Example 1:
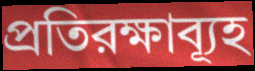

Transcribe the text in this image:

প্রতিরক্ষাব্যূহ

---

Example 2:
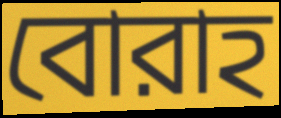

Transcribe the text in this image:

বোরাহ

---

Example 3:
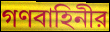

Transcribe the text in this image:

গণবাহিনীর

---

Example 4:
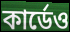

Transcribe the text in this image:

কার্ডেও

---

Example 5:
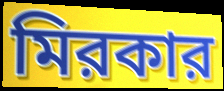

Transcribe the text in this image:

মিরকার